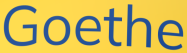
Goethe